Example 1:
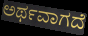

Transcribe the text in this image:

ಅರ್ಥವಾಗದೆ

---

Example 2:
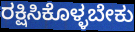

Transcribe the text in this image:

ರಕ್ಷಿಸಿಕೊಳ್ಳಬೇಕು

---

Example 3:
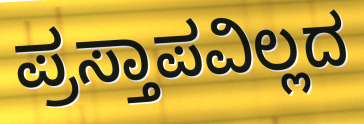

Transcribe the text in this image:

ಪ್ರಸ್ತಾಪವಿಲ್ಲದ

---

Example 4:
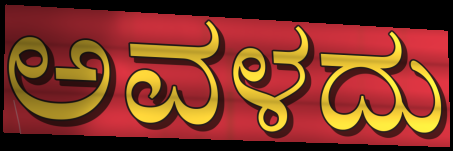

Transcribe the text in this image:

ಅವಳದು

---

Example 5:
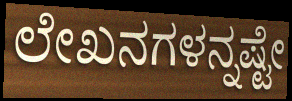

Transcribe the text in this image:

ಲೇಖನಗಳನ್ನಷ್ಟೇ